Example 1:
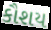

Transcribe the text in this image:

કૌશય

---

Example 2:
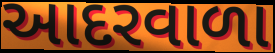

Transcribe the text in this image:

આદરવાળા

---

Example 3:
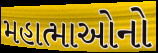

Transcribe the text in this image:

મહાત્માઓનો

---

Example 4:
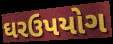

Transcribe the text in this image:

ઘરઉપયોગ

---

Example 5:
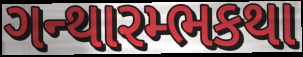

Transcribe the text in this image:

ગન્થારમ્ભકથા